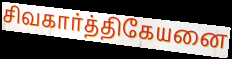
சிவகார்த்திகேயனை